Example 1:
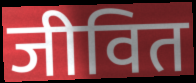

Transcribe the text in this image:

जीवित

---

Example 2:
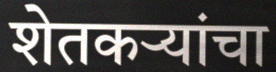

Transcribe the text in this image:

शेतकर्‍यांचा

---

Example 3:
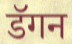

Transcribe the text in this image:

डॅगन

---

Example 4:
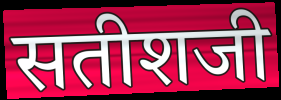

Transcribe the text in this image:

सतीशजी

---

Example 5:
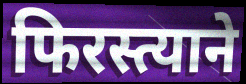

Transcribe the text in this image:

फिरस्त्याने